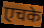
एचके